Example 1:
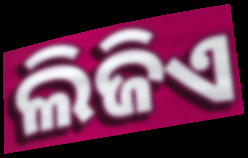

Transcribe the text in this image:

ଲିଜିଏ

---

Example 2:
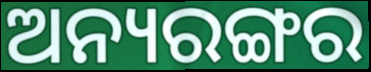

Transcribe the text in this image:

ଅନ୍ୟରଙ୍ଗର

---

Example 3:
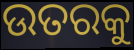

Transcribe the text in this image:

ଉତରକୁ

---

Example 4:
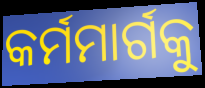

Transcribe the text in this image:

କର୍ମମାର୍ଗକୁ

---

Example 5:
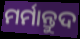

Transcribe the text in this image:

ମର୍ମାନ୍ତୁଦ